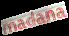
madana